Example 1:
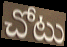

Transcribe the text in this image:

చోటు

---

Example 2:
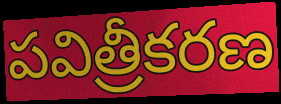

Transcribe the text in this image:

పవిత్రీకరణ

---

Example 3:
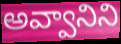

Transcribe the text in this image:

అవ్వానిని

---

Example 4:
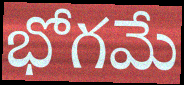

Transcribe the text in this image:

భోగమే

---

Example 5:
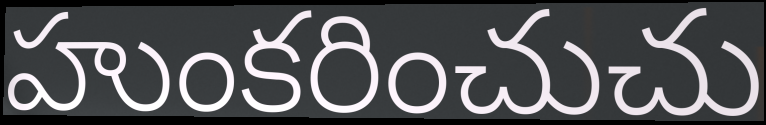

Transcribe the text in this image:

హుంకరించుచు